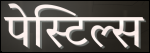
पेस्टिल्स